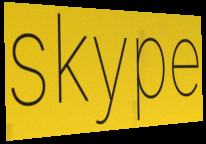
skype